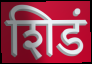
शिडं